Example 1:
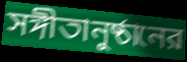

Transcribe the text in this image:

সঙ্গীতানুষ্ঠানের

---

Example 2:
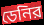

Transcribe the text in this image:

ডেনির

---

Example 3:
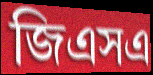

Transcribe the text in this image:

জিএসএ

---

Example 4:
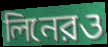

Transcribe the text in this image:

লিনেরও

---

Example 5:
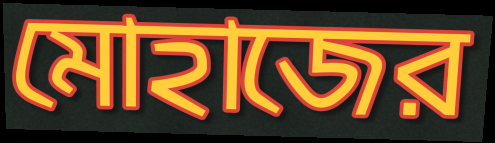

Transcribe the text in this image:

মোহাজের